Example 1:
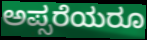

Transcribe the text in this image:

ಅಪ್ಸರೆಯರೂ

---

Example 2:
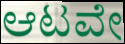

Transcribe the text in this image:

ಆಟವೇ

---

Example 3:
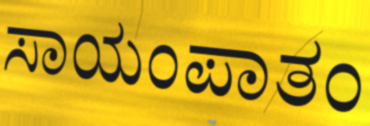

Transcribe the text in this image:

ಸಾಯಂಪಾತಂ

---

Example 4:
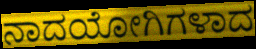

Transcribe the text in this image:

ನಾದಯೋಗಿಗಳಾದ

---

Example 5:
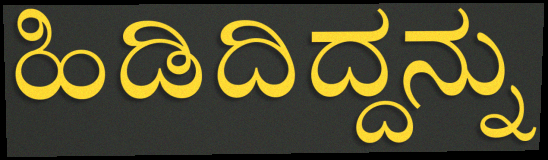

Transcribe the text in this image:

ಹಿಡಿದಿದ್ದನ್ನು